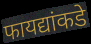
फायद्यांकडे